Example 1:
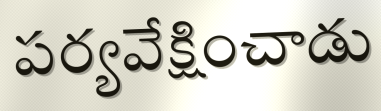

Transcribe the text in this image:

పర్యవేక్షించాడు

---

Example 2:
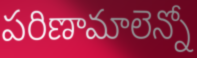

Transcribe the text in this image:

పరిణామాలెన్నో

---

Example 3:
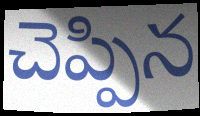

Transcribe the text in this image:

చెప్పిన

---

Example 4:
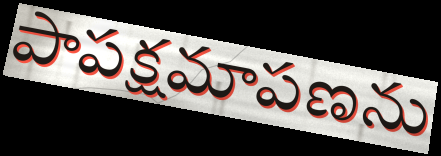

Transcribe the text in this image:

పాపక్షమాపణను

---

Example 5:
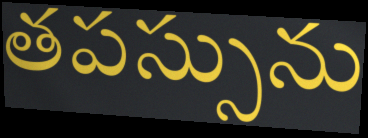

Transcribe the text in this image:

తపస్సును